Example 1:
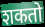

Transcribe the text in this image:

शकतो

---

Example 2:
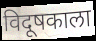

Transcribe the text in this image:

विदूषकाला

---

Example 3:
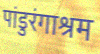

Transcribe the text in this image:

पांडुरंगाश्रम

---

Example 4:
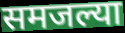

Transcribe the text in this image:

समजल्या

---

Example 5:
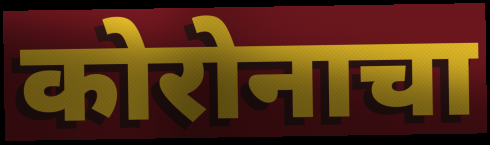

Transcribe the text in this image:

कोरोनाचा